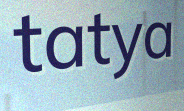
tatya